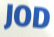
JOD